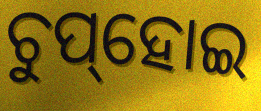
ଚୁପ୍‌ହୋଇ